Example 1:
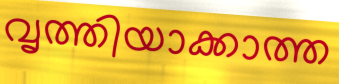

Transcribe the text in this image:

വൃത്തിയാക്കാത്ത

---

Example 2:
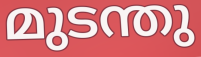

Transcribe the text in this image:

മുടന്തു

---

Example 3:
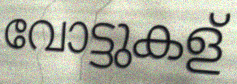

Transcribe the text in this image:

വോട്ടുകള്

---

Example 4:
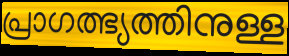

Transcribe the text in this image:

പ്രാഗത്ഭ്യത്തിനുള്ള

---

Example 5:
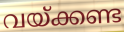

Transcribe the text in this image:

വയ്ക്കണ്ട